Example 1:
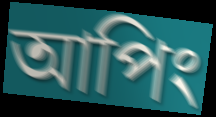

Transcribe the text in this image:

আপিং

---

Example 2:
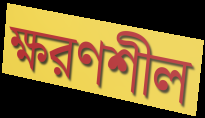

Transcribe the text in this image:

ক্ষরণশীল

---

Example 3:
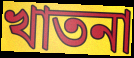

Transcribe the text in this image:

খাতনা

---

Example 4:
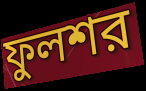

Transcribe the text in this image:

ফুলশর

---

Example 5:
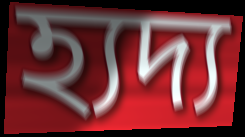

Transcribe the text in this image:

হ্যদ্য